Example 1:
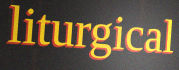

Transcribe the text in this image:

liturgical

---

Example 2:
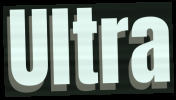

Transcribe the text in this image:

Ultra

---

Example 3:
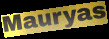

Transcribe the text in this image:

Mauryas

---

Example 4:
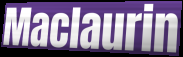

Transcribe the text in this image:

Maclaurin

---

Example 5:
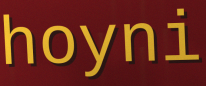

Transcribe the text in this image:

hoyni